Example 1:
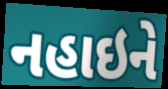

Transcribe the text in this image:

નહાઇને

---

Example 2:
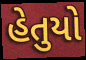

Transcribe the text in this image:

હેતુયો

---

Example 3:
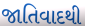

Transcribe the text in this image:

જાતિવાદથી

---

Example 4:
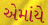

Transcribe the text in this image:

એમાંયે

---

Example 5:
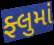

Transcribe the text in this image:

ફ્લુમાં